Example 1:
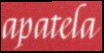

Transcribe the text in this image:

apatela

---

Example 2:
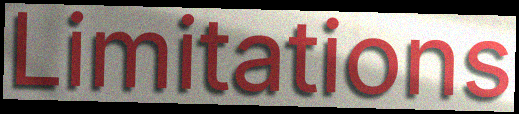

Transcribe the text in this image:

Limitations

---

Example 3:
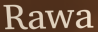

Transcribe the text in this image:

Rawa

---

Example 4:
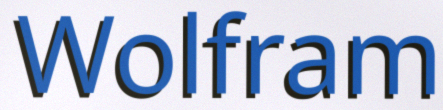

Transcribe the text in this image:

Wolfram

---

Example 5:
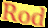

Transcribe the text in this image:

Rod